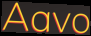
Aavo